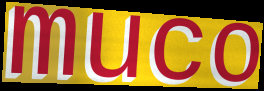
muco